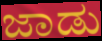
ಜಾಡು